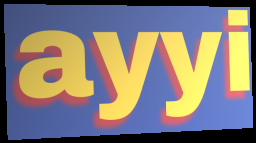
ayyi